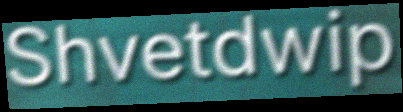
Shvetdwip